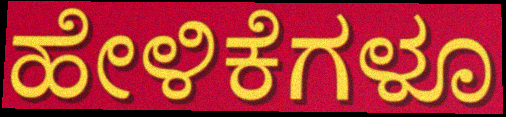
ಹೇಳಿಕೆಗಳೂ